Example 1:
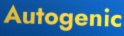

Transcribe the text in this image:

Autogenic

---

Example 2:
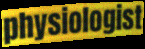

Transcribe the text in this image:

physiologist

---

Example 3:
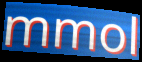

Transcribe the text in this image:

mmol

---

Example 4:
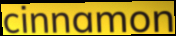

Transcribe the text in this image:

cinnamon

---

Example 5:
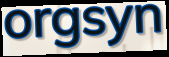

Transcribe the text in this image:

orgsyn